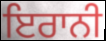
ਇਰਾਨੀ